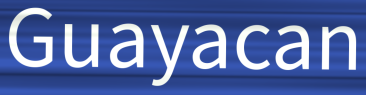
Guayacan